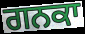
ਗਨਕਾ